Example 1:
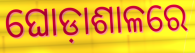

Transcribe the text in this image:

ଘୋଡ଼ାଶାଳରେ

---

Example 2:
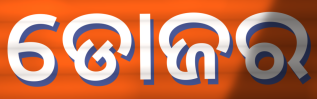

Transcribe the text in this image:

ଡୋଜର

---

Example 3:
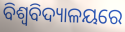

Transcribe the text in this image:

ବିଶ୍ବବିଦ୍ୟାଳୟରେ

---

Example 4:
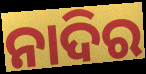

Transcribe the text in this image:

ନାଦିର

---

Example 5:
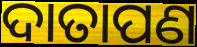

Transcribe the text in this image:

ଦାତାପଣ